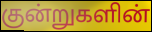
குன்றுகளின்